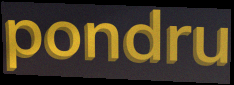
pondru